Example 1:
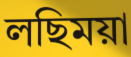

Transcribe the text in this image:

লছিময়া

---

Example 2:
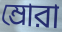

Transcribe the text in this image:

ম্রোরা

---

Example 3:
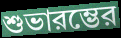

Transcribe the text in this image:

শুভারম্ভের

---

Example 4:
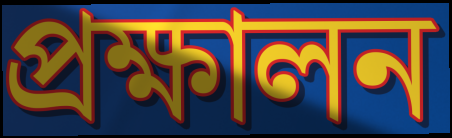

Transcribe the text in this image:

প্রক্ষালন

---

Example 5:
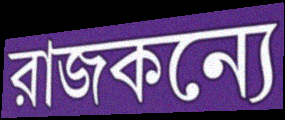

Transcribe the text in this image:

রাজকন্যে